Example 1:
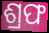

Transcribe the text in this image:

ଶ୍ରଫ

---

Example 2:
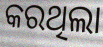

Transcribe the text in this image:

କରଥିଲା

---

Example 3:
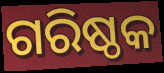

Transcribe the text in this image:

ଗରିଷ୍ଠକ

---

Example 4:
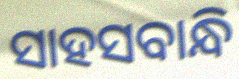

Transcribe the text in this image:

ସାହସବାନ୍ଧି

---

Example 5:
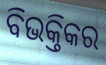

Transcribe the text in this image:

ବିଭକ୍ତିକର